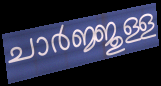
ചാർജ്ജുള്ള